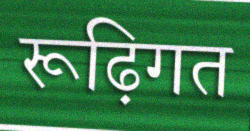
रूढ़िगत